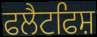
ਫਲੈਟਫਿਸ਼